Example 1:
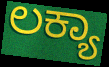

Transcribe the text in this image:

ಲಕ್ಯಾ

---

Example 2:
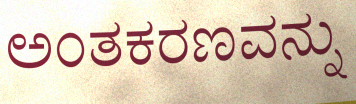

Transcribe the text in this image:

ಅಂತಕರಣವನ್ನು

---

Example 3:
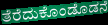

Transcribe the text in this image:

ತೆರೆದುಕೊಂಡೊಡನೆ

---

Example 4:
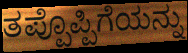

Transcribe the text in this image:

ತಪ್ಪೊಪ್ಪಿಗೆಯನ್ನು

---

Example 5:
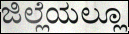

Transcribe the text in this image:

ಜಿಲ್ಲೆಯಲ್ಲೂ